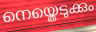
നെയ്തെടുക്കും